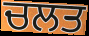
ਚਲਤ